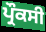
ਪ੍ਰੌਕਸੀ